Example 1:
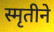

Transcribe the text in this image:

स्मृतीने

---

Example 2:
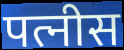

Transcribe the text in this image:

पत्‍नीस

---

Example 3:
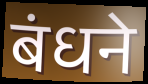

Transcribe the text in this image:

बंधने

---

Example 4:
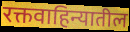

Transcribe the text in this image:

रक्तवाहिन्यातील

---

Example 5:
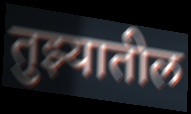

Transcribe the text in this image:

तुझ्यातील